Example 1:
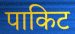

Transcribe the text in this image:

पाकिट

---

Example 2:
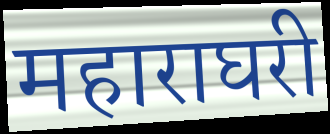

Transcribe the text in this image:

महाराघरी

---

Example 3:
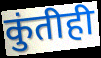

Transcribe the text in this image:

कुंतीही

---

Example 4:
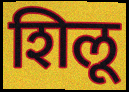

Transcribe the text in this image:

शिलू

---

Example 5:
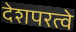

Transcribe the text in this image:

देशपरत्वे